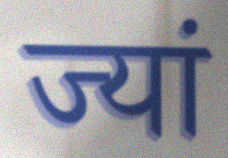
ज्यां